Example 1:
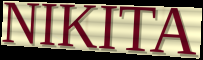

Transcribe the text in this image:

NIKITA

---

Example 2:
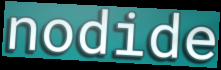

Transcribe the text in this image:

nodide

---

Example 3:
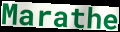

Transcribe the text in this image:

Marathe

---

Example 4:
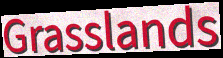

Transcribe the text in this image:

Grasslands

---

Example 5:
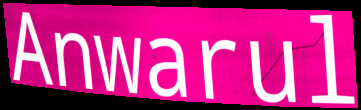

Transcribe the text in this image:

Anwarul